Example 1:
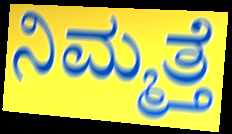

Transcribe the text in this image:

ನಿಮ್ಮತ್ತೆ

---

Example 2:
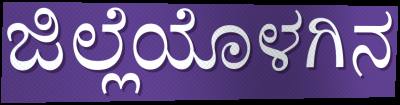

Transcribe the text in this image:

ಜಿಲ್ಲೆಯೊಳಗಿನ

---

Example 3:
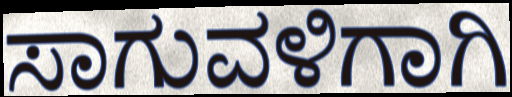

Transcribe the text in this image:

ಸಾಗುವಳಿಗಾಗಿ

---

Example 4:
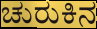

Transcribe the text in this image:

ಚುರುಕಿನ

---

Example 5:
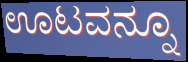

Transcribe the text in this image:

ಊಟವನ್ನೂ